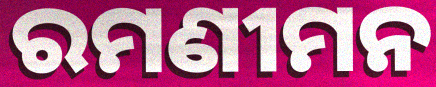
ରମଣୀମନ